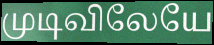
முடிவிலேயே